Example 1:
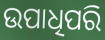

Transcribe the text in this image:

ଉପାଧିପରି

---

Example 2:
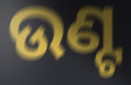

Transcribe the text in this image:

ଉଣ୍ଟ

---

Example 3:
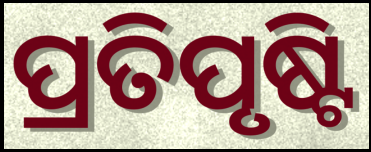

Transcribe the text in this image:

ପ୍ରତିପୃଷ୍ଟି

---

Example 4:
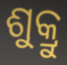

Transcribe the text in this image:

ଶୁକ୍ରୁ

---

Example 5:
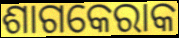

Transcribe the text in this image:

ଶାଗକେରାକ